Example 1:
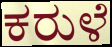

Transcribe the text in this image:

ಕರುಳೆ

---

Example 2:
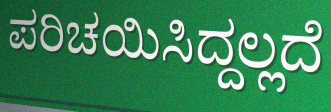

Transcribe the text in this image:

ಪರಿಚಯಿಸಿದ್ದಲ್ಲದೆ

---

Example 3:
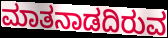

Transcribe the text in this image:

ಮಾತನಾಡದಿರುವ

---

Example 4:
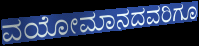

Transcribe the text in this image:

ವಯೋಮಾನದವರಿಗೂ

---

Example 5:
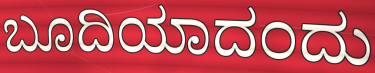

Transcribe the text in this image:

ಬೂದಿಯಾದಂದು